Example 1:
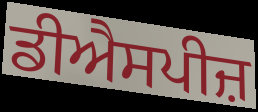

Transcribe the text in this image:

ਡੀਐਸਪੀਜ਼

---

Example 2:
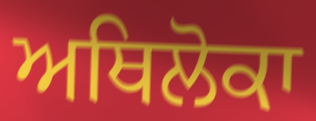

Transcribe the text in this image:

ਅਥਿਲੋਕਾ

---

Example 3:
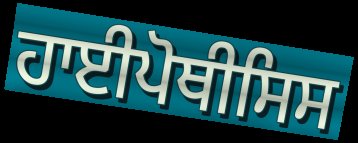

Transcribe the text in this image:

ਹਾਈਪੋਥੀਸਿਸ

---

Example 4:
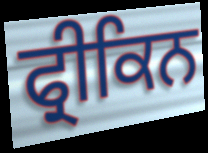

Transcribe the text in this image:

ਫ੍ਰੀਕਿਨ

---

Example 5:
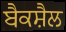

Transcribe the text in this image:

ਬੈਕਸ਼ੈਲ